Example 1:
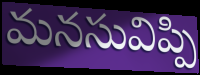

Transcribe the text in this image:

మనసువిప్పి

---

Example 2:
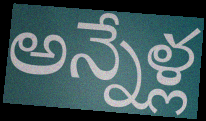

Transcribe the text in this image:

అన్నేళ్ల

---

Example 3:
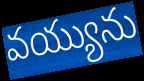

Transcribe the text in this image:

వయ్యును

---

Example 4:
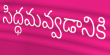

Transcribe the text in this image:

సిద్ధమవ్వడానికి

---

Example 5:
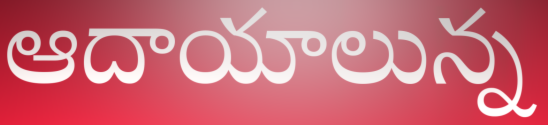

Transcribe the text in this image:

ఆదాయాలున్న